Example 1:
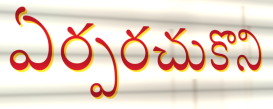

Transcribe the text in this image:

ఏర్పరచుకొని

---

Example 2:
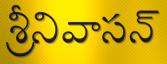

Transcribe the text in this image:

శ్రీనివాసన్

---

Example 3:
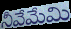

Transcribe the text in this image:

నీవేమేమి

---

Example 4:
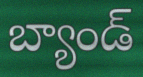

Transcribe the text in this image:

బ్యాండ్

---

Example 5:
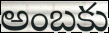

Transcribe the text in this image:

అంబకు